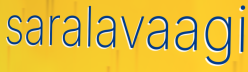
saralavaagi